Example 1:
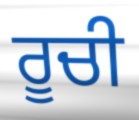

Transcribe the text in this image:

ਰੂਚੀ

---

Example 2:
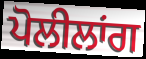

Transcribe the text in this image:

ਪੋਲੀਲਾਂਗ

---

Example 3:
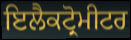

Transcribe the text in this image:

ਇਲੈਕਟ੍ਰੋਮੀਟਰ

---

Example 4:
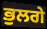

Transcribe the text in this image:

ਭੁਲਗੇ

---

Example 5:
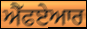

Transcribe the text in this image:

ਐੱਫਏਆਰ